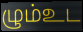
ழும்உட